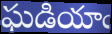
ఘడియాఁ